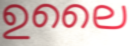
ഉലൈ